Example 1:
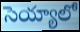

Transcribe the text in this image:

సెయ్యాలో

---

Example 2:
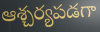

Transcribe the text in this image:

ఆశ్చర్యపడగా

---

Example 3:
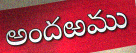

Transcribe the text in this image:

అందఱము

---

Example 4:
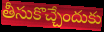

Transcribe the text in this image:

తీసుకొచ్చేందుకు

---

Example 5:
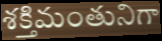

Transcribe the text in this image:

శక్తిమంతునిగా